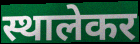
स्थालेकर